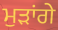
ਮੁੜਾਂਗੇ